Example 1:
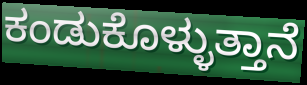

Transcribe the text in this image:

ಕಂಡುಕೊಳ್ಳುತ್ತಾನೆ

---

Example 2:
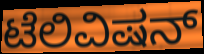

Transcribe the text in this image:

ಟೆಲಿವಿಷನ್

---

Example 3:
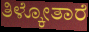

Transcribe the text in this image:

ತಿಳ್ಕೋತಾರೆ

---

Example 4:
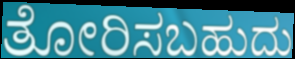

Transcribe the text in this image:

ತೋರಿಸಬಹುದು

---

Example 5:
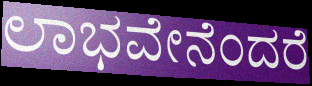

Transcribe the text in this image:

ಲಾಭವೇನೆಂದರೆ